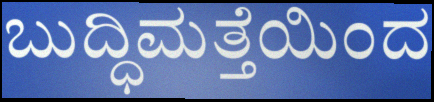
ಬುದ್ಧಿಮತ್ತೆಯಿಂದ